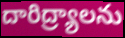
దారిద్ర్యాలను